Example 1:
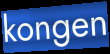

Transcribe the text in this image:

kongen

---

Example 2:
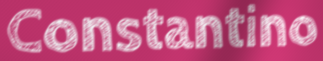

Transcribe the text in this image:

Constantino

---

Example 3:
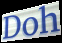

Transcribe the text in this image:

Doh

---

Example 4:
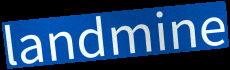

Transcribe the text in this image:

landmine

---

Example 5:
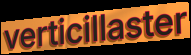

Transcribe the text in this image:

verticillaster